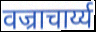
वज्राचार्य्य